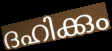
ദഹിക്കും